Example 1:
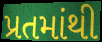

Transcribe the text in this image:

પ્રતમાંથી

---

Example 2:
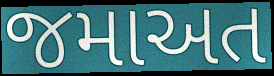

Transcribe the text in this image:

જમાઅત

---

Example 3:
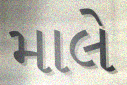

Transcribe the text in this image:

માલે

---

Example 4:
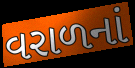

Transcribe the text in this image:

વરાળનાં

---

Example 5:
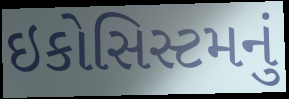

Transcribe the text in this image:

ઇકોસિસ્ટમનું